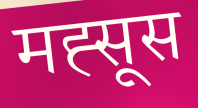
मह्सूस